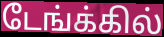
டேங்க்கில்